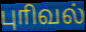
புரிவல்